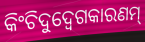
କିଂଚିଦୁଦ୍ବେଗକାରଣମ୍